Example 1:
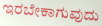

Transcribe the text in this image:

ಇರಬೇಕಾಗುವುದು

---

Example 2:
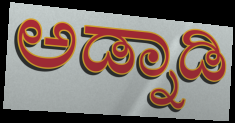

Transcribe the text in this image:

ಅಡ್ನಾಡಿ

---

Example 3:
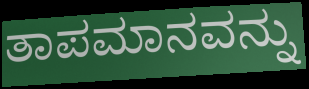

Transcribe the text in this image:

ತಾಪಮಾನವನ್ನು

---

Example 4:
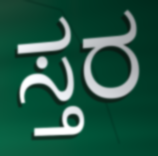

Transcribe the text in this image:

ಸ್ತರ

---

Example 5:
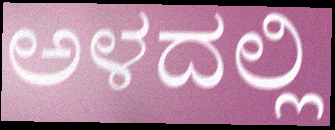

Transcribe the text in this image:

ಅಳದಲ್ಲಿ